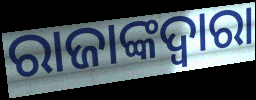
ରାଜାଙ୍କଦ୍ଵାରା